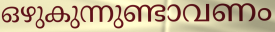
ഒഴുകുന്നുണ്ടാവണം